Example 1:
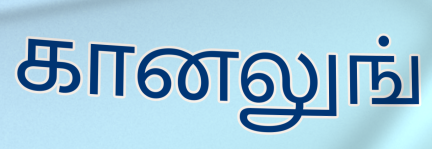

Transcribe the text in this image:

கானலுங்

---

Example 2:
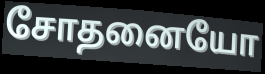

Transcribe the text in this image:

சோதனையோ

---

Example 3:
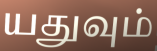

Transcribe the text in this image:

யதுவும்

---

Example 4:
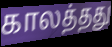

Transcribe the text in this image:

காலத்தது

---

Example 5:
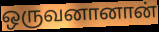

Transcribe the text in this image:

ஒருவனானான்